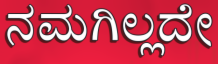
ನಮಗಿಲ್ಲದೇ